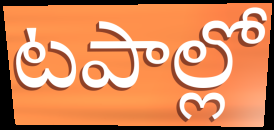
టపాల్లో